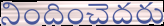
నిందించెదరు